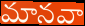
మానవా